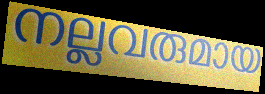
നല്ലവരുമായ